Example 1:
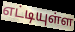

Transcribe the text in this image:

எட்டியுள்ள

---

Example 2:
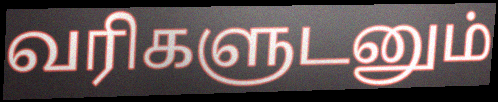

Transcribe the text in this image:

வரிகளுடனும்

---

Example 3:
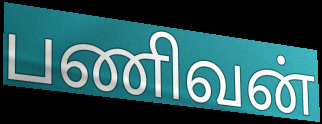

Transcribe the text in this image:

பணிவன்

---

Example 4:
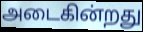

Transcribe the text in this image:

அடைகின்றது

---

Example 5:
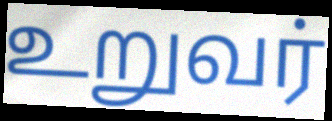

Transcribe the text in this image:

உறுவர்